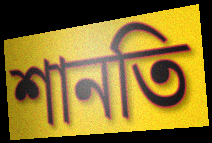
শানতি